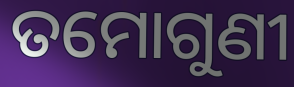
ତମୋଗୁଣୀ